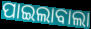
ପାଇଲାବାଲା